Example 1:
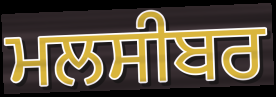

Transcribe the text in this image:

ਮਲਸੀਬਰ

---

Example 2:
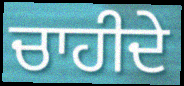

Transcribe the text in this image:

ਚਾਹੀਦੇ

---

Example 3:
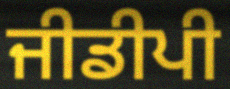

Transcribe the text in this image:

ਜੀਡੀਪੀ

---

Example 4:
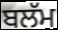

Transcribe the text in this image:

ਬਲੱਮ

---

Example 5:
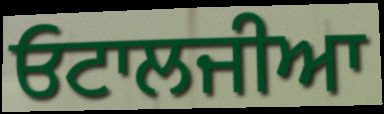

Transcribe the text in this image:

ਓਟਾਲਜੀਆ